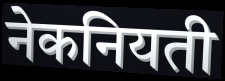
नेकनियती